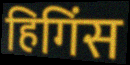
हिगिंस